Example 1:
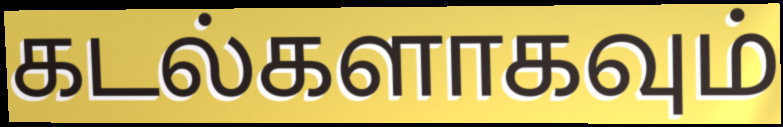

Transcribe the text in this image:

கடல்களாகவும்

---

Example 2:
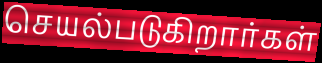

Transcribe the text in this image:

செயல்படுகிறார்கள்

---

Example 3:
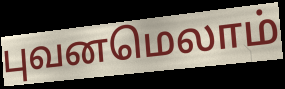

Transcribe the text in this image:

புவனமெலாம்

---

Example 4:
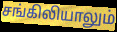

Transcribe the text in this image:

சங்கிலியாலும்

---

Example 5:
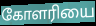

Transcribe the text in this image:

கோளரியை